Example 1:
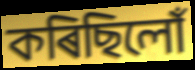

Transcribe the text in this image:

কৰিছিলোঁ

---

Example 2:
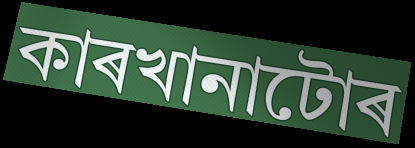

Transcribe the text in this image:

কাৰখানাটোৰ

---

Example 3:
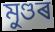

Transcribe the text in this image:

মুণ্ডৰ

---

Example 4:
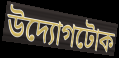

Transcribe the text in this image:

উদ্যোগটোক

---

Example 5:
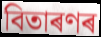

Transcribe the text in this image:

বিতাৰণৰ